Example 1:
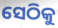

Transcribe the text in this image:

ସେଠିକୁ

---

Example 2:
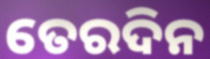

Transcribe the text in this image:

ତେରଦିନ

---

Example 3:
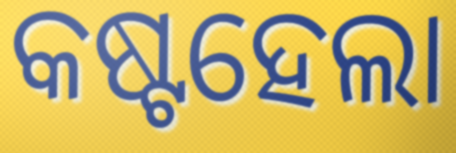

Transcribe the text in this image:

କଷ୍ଟହେଲା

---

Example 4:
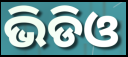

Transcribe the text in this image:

ଭିଡିଓ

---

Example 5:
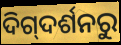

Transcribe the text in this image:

ଦିଗ୍‌ଦର୍ଶନରୁ